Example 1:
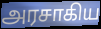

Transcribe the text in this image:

அரசாகிய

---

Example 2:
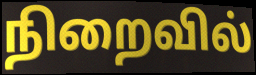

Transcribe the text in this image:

நிறைவில்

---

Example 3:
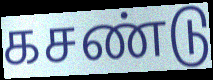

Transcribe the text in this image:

கசண்டு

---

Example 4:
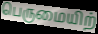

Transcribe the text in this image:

பெருமையிற்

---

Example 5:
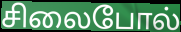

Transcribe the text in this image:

சிலைபோல்